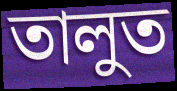
তালুত